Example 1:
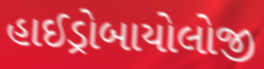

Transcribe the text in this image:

હાઈડ્રોબાયોલોજી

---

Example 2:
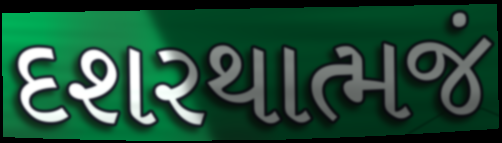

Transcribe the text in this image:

દશરથાત્મજં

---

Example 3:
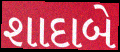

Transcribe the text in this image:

શાદાબે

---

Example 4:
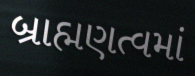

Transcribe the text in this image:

બ્રાહ્મણત્વમાં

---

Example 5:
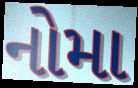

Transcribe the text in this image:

નોમા